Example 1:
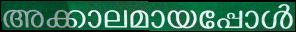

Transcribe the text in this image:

അക്കാലമായപ്പോൾ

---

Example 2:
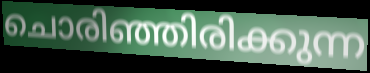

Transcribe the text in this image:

ചൊരിഞ്ഞിരിക്കുന്ന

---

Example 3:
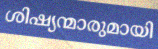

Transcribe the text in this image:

ശിഷ്യന്മാരുമായി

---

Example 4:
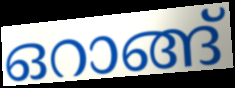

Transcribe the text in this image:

ഒറാങ്ങ്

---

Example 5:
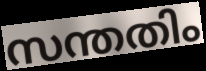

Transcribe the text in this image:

സന്തതിം